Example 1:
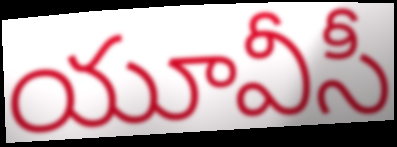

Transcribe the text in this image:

యూవీసీ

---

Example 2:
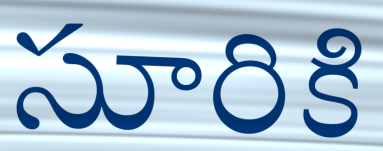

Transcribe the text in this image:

సూరికి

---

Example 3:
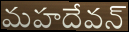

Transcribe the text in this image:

మహదేవన్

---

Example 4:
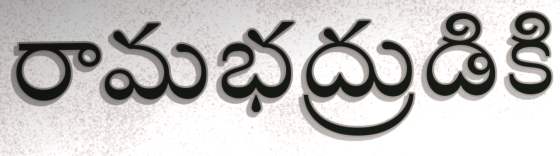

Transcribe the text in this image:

రామభద్రుడికి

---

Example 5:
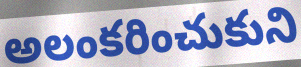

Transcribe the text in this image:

అలంకరించుకుని